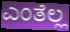
ಎಂತೆಲ್ಲ